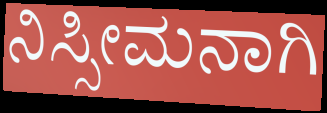
ನಿಸ್ಸೀಮನಾಗಿ